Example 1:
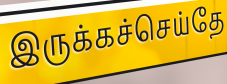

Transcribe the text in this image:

இருக்கச்செய்தே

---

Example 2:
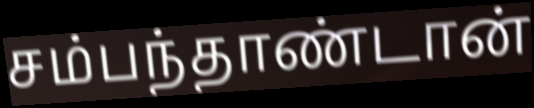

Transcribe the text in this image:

சம்பந்தாண்டான்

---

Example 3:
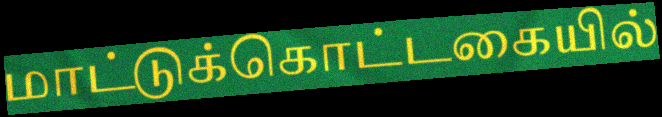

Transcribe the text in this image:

மாட்டுக்கொட்டகையில்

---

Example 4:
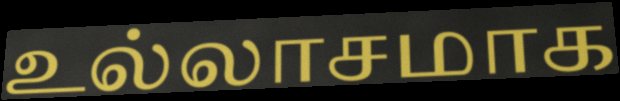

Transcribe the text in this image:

உல்லாசமாக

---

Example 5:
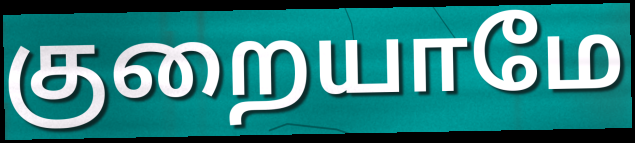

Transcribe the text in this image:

குறையாமே